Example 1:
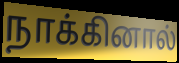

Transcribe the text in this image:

நாக்கினால்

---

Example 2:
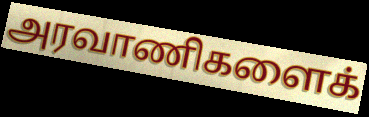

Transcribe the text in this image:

அரவாணிகளைக்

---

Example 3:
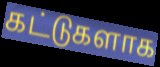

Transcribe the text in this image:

கட்டுகளாக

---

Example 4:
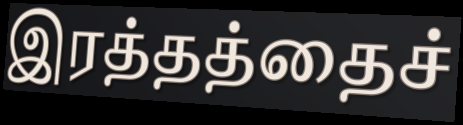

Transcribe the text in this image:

இரத்தத்தைச்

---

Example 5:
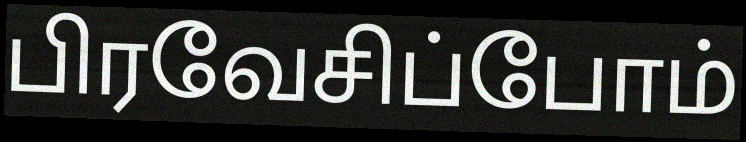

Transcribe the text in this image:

பிரவேசிப்போம்